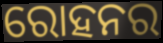
ରୋହନର